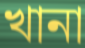
খানা